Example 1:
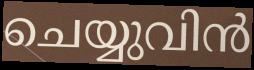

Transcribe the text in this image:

ചെയ്യുവിൻ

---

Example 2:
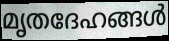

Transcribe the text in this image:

മൃതദേഹങ്ങൾ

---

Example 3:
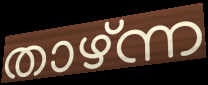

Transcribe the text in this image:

താഴ്ന്ന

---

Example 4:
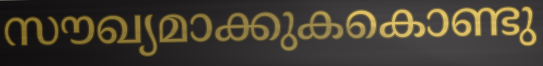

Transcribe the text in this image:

സൗഖ്യമാക്കുകകൊണ്ടു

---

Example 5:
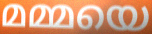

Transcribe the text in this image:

മമ്മയെ